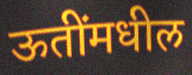
ऊतींमधील